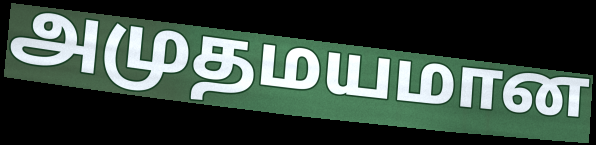
அமுதமயமான